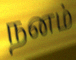
நனம்